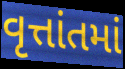
વૃત્તાંતમાં